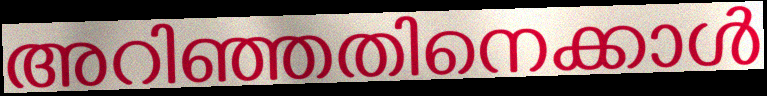
അറിഞ്ഞതിനെക്കാൾ